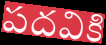
పదవికి